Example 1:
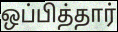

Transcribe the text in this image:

ஒப்பித்தார்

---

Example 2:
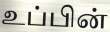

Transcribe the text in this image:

உப்பின்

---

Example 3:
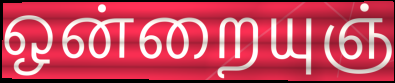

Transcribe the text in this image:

ஒன்றையுஞ்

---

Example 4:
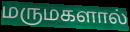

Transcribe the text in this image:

மருமகளால்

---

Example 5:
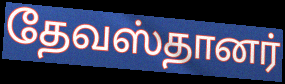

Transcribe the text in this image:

தேவஸ்தானர்